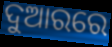
ଦୁଆରରେ